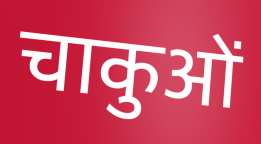
चाकुओं